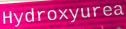
Hydroxyurea